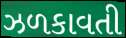
ઝળકાવતી